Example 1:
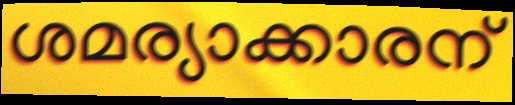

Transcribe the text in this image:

ശമര്യാക്കാരന്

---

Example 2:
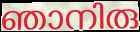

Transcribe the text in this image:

ഞാനിരു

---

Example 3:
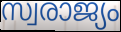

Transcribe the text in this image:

സ്വരാജ്യം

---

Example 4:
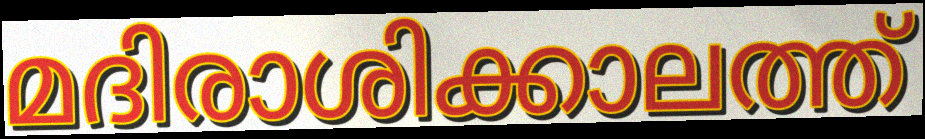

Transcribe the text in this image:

മദിരാശിക്കാലത്ത്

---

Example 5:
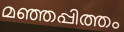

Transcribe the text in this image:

മഞ്ഞപ്പിത്തം